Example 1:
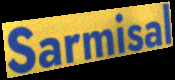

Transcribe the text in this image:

Sarmisal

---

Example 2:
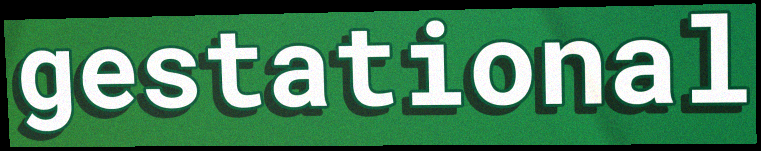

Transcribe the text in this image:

gestational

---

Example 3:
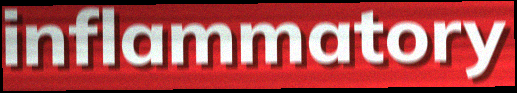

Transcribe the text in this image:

inflammatory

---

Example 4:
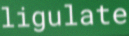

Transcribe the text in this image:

ligulate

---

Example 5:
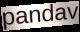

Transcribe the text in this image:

pandav